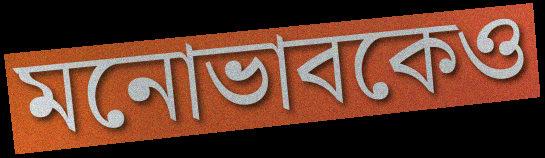
মনোভাবকেও